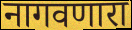
नागवणारा